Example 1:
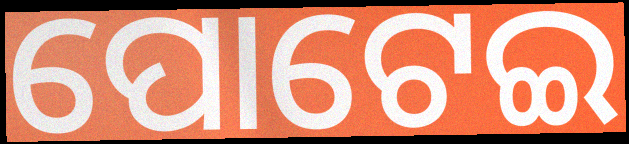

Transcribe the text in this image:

ପୋଟେଇ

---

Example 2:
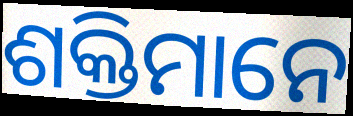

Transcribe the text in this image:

ଶକ୍ତିମାନେ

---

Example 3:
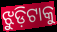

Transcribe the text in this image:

ଝୁଡ଼ିଟାକୁ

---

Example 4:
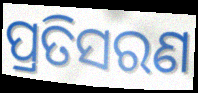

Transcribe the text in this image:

ପ୍ରତିସରଣ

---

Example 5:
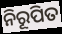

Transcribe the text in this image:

ନିରୂପିତ